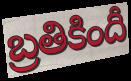
బ్రతికిందీ